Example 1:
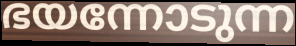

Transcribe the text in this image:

ഭയന്നോടുന്ന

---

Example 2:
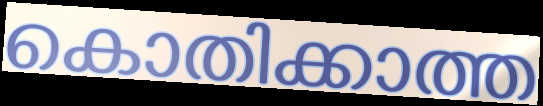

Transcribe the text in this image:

കൊതിക്കാത്ത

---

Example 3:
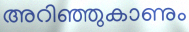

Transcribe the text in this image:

അറിഞ്ഞുകാണും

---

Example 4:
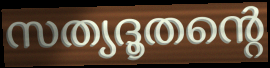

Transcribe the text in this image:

സത്യദൂതന്റെ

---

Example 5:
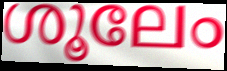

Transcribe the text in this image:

ശൂലേം